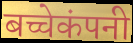
बच्चेकंपनी